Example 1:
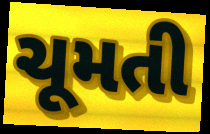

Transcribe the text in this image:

ચૂમતી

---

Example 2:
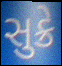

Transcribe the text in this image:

સુક્રે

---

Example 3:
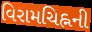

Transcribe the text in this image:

વિરામચિહ્નની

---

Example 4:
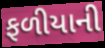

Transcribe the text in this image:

ફળીયાની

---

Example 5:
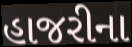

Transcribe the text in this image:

હાજરીના